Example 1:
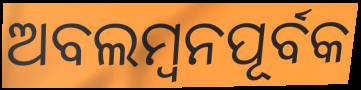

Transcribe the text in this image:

ଅବଲମ୍ୱନପୂର୍ବକ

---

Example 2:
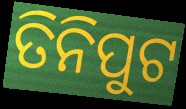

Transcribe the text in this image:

ତିନିପୁଟ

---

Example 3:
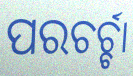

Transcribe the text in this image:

ପରଚର୍ଚ୍ଚା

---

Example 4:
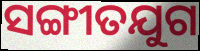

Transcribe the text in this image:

ସଙ୍ଗୀତଯୁଗ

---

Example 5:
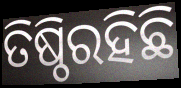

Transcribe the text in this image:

ତିଷ୍ଠିରହିଛି